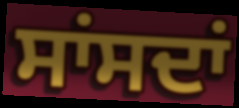
ਸਾਂਸਦਾਂ